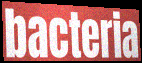
bacteria